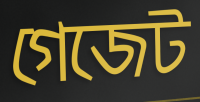
গেজেট